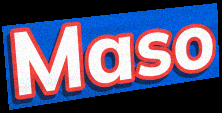
Maso